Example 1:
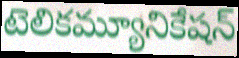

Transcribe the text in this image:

టెలికమ్యూనికేషన్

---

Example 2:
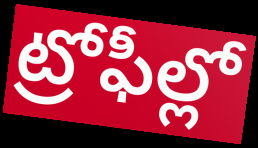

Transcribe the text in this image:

ట్రోఫీల్లో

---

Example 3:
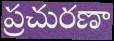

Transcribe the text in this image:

ప్రచురణా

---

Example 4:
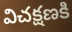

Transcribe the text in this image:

విచక్షణకి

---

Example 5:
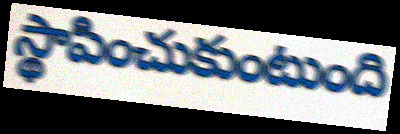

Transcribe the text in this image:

స్థాపించుకుంటుంది